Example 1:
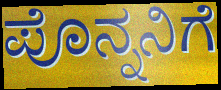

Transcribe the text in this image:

ಪೊನ್ನನಿಗೆ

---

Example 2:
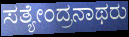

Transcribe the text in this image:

ಸತ್ಯೇಂದ್ರನಾಥರು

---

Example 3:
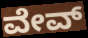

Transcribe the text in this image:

ವೇವ್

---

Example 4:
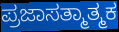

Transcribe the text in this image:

ಪ್ರಜಾಸತ್ಮಾತ್ಮಕ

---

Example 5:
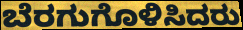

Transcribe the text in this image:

ಬೆರಗುಗೊಳಿಸಿದರು